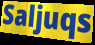
Saljuqs